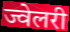
ज्वेलरी